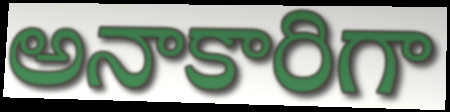
అనాకారిగా